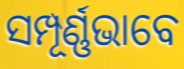
ସମ୍ପୂର୍ଣ୍ଣଭାବେ